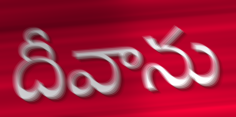
దీవాను